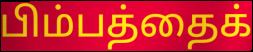
பிம்பத்தைக்